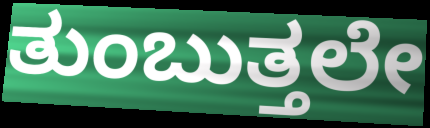
ತುಂಬುತ್ತಲೇ